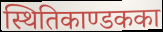
स्थितिकाण्डकका